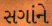
સગાંને